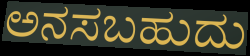
ಅನಸಬಹುದು